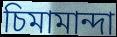
চিমামান্দা